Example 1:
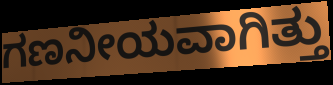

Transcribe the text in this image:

ಗಣನೀಯವಾಗಿತ್ತು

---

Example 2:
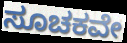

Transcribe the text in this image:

ಸೂಚಕವೇ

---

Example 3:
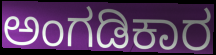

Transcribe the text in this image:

ಅಂಗಡಿಕಾರ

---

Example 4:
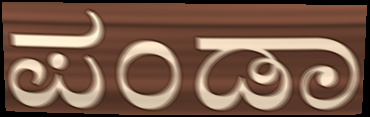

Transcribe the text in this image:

ಪಂಡಾ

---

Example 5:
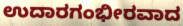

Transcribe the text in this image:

ಉದಾರಗಂಭೀರವಾದ